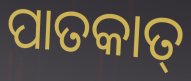
ପାତକାତ୍